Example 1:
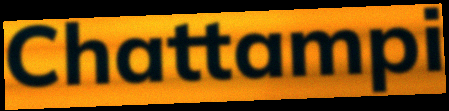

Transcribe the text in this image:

Chattampi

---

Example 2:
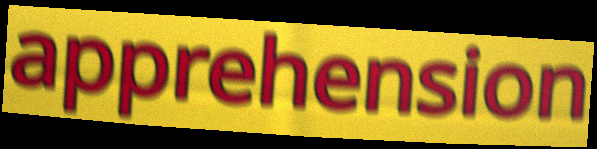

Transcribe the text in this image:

apprehension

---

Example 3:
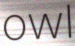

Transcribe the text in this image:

owl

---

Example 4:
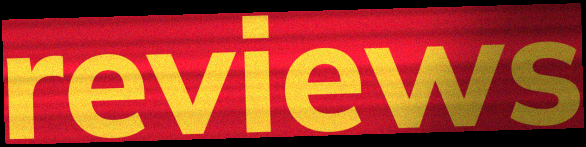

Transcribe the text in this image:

reviews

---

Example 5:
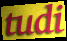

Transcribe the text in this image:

tudi